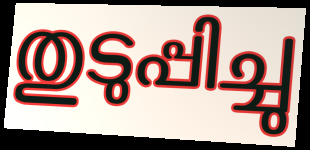
തുടുപ്പിച്ചു